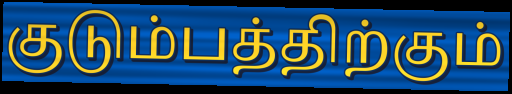
குடும்பத்திற்கும்